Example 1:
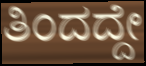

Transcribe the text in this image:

ತಿಂದದ್ದೇ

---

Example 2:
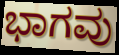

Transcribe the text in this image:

ಭಾಗವು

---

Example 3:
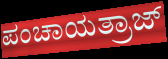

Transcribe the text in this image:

ಪಂಚಾಯತ್ರಾಜ್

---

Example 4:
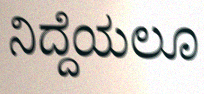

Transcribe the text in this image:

ನಿದ್ದೆಯಲೂ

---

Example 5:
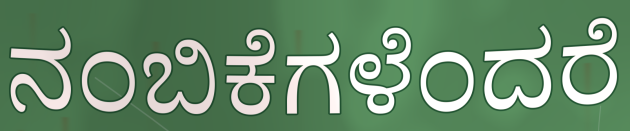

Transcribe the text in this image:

ನಂಬಿಕೆಗಳೆಂದರೆ